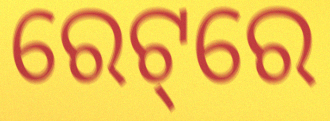
ରେଟ୍‌ରେ